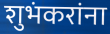
शुभंकरांना